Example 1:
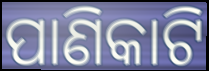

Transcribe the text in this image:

ପାଣିକାଟି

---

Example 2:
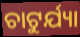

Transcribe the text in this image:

ଚାଟୁର୍ଯ୍ୟା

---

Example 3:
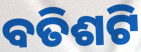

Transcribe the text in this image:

ବତିଶଟି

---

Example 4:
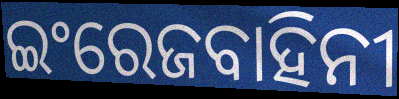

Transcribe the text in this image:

ଇଂରେଜବାହିନୀ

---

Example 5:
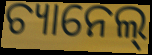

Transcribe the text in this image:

ଚ୍ୟାନେଲ୍